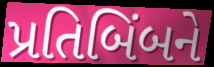
પ્રતિબિંબને